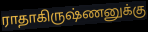
ராதாகிருஷ்ணனுக்கு